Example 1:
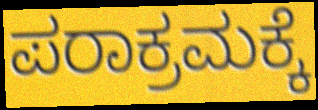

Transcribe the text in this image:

ಪರಾಕ್ರಮಕ್ಕೆ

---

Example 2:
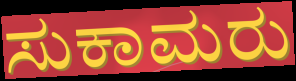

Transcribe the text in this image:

ಸುಕಾಮರು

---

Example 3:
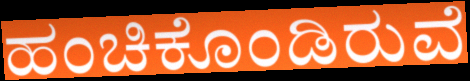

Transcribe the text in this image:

ಹಂಚಿಕೊಂಡಿರುವೆ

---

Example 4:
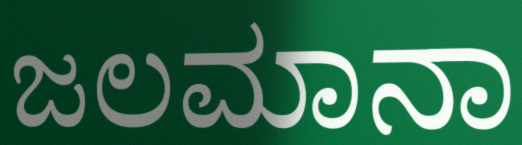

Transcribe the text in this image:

ಜಲಮಾನಾ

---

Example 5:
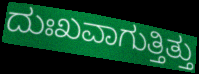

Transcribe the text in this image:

ದುಃಖವಾಗುತ್ತಿತ್ತು